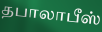
தபாலாபீஸ்